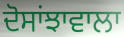
ਦੋਸਾਂਝਾਵਾਲਾ